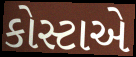
કોસ્ટાએ